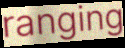
ranging